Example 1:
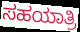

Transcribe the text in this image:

ಸಹಯಾತ್ರಿ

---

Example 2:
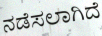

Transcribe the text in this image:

ನಡೆಸಲಾಗಿದೆ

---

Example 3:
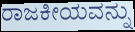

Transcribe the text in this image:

ರಾಜಕೀಯವನ್ನು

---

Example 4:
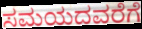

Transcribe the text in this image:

ಸಮಯದವರೆಗೆ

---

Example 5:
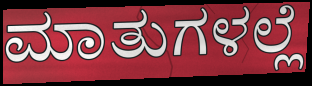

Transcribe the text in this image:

ಮಾತುಗಳಲ್ಲೆ